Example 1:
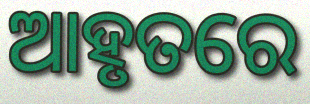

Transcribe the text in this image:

ଆହୃତରେ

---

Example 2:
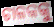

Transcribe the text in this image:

ଚାଳକକୁ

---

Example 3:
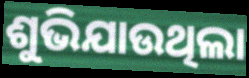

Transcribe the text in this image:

ଶୁଭିଯାଉଥିଲା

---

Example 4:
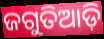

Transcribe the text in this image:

ଜଗୁତିଆଡ଼ି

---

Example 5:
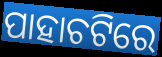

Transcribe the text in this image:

ପାହାଚଟିରେ